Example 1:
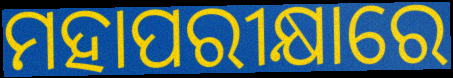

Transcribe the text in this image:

ମହାପରୀକ୍ଷାରେ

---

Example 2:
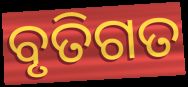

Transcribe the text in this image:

ବୃତିଗତ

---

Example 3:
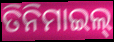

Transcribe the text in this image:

ତିନିମାଇଲ୍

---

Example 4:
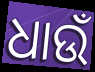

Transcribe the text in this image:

ଧାଉଁ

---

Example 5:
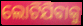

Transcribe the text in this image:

ଲୋଟିଯିବାକୁ